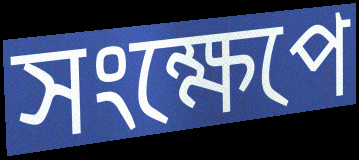
সংক্ষেপে